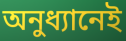
অনুধ্যানেই